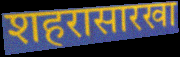
शहरासारखा